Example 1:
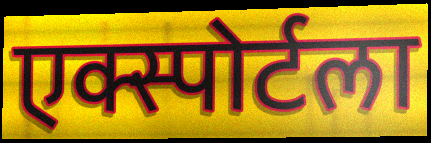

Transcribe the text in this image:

एक्स्पोर्टला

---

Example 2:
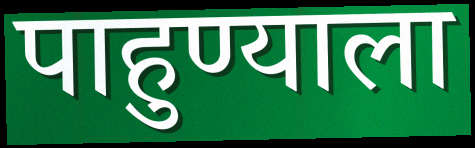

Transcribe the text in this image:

पाहुण्याला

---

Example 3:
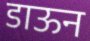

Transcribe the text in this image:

डाऊन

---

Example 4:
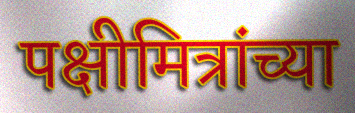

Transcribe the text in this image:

पक्षीमित्रांच्या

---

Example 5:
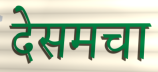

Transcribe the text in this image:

देसमचा